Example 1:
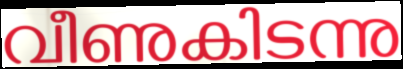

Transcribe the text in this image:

വീണുകിടന്നു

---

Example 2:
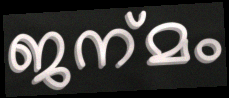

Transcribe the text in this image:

ജന്‌മം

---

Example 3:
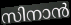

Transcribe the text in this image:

സിനാൻ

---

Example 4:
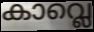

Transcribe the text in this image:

കാവ്ലെ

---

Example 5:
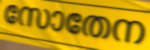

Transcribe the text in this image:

സോതേന